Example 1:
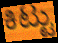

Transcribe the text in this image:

ಕಿಟ್ಟು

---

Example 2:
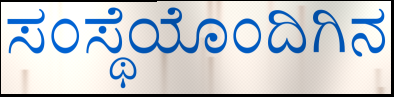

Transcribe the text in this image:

ಸಂಸ್ಥೆಯೊಂದಿಗಿನ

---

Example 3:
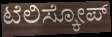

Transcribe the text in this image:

ಟೆಲಿಸ್ಕೋಪ್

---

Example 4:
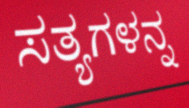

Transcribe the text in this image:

ಸತ್ಯಗಳನ್ನ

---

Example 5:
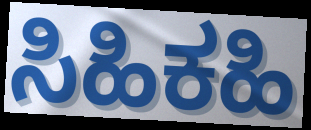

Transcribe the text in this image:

ಸಿಹಿಕಹಿ